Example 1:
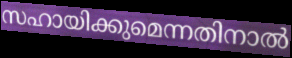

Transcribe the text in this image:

സഹായിക്കുമെന്നതിനാൽ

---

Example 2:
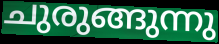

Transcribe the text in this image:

ചുരുങ്ങുന്നു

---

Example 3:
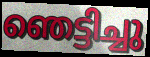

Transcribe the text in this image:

ഞെട്ടിച്ചു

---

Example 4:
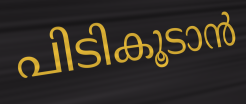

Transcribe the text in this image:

പിടികൂടാൻ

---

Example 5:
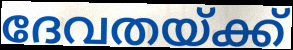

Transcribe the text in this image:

ദേവതയ്ക്ക്